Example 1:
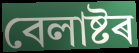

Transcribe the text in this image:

বেলাষ্টৰ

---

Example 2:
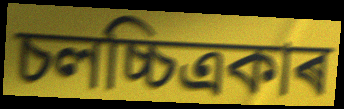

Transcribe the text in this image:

চলচ্চিত্ৰকাৰ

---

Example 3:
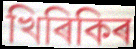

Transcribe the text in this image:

খিৰিকিৰ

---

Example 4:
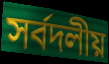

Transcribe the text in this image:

সৰ্বদলীয়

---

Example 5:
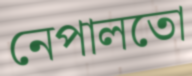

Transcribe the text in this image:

নেপালতো